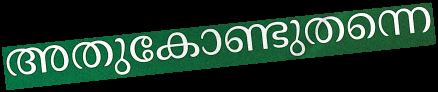
അതുകോണ്ടുതന്നെ